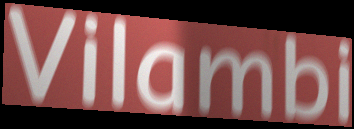
Vilambi